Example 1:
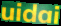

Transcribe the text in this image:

uidai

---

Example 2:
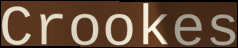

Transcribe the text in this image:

Crookes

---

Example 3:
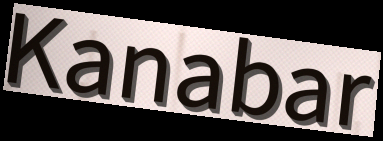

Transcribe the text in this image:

Kanabar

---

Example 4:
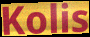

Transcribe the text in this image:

Kolis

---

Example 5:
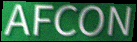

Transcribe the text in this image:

AFCON